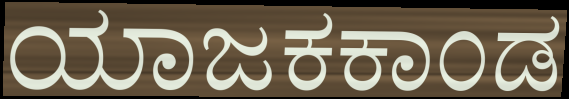
ಯಾಜಕಕಾಂಡ